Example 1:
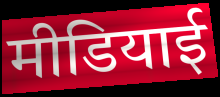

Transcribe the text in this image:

मीडियाई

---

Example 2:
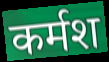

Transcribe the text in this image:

कर्मश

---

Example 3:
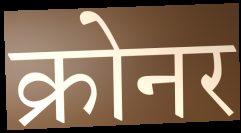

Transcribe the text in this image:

क्रोनर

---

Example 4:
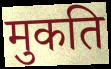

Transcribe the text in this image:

मुकति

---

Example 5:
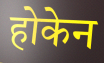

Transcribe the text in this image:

होकेन